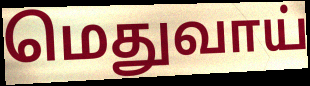
மெதுவாய்